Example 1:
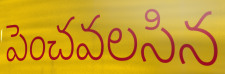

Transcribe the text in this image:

పెంచవలసిన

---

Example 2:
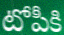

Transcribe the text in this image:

టోపీకి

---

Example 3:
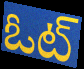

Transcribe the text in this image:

ఓట్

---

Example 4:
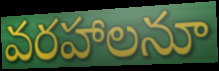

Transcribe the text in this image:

వరహాలనూ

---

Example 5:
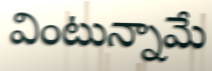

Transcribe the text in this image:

వింటున్నామే